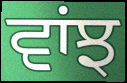
ਵਾਂਝ